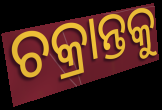
ଚକ୍ରାନ୍ତକୁ